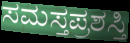
ಸಮಸ್ತಪ್ರಶಸ್ತಿ